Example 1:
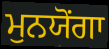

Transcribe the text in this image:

ਮੁਨਯੋਂਗਾ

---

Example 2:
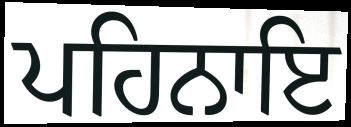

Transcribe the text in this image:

ਪਹਿਨਾਇ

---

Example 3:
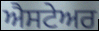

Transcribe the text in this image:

ਐਸਟੇਅਰ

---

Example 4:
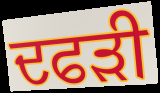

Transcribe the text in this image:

ਦਫੜੀ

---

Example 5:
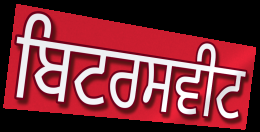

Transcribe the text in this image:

ਬਿਟਰਸਵੀਟ